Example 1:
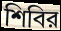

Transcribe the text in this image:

শিবির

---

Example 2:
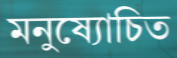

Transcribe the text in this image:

মনুষ্যোচিত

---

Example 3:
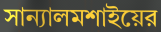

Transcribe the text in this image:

সান্যালমশাইয়ের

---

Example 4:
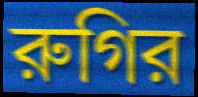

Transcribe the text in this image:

রুগির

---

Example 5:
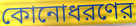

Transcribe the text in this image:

কোনোধরণের